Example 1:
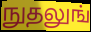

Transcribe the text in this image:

நுதலுங்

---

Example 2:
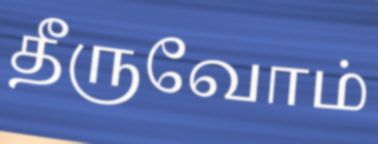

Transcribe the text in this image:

தீருவோம்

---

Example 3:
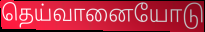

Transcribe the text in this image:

தெய்வானையோடு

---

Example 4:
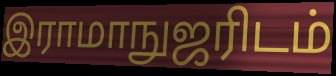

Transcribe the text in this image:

இராமாநுஜரிடம்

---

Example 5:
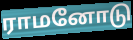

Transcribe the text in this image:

ராமனோடு